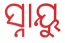
ସ୍ନାୟୁ